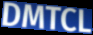
DMTCL